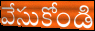
వేసుకోండి